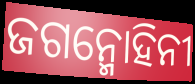
ଜଗନ୍ମୋହିନୀ